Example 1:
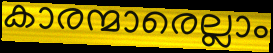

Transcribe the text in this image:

കാരന്മാരെല്ലാം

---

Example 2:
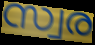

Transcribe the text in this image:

സ്വര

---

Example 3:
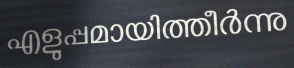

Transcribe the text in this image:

എളുപ്പമായിത്തീർന്നു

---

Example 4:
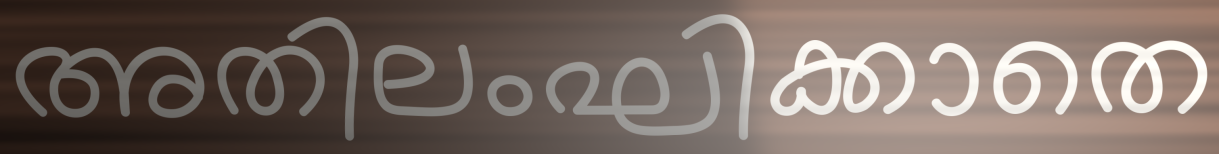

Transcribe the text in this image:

അതിലംഘിക്കാതെ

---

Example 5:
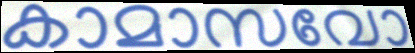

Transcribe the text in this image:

കാമാസവോ